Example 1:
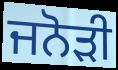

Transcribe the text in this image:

ਜਨੋੜੀ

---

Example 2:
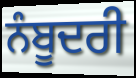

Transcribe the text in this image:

ਨੰਬੂਦਰੀ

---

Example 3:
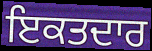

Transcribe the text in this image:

ਇਕਤਦਾਰ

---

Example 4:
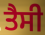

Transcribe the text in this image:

ਤੈਸੀ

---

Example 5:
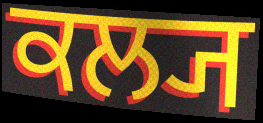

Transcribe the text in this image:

ਕਲ੍ਯ